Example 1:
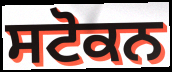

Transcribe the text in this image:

ਸਟੋਕਨ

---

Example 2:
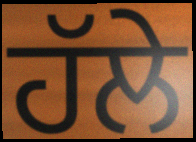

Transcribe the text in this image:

ਹੱਲੇ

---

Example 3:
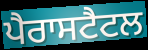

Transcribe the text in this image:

ਪੈਰਾਸਟੈਟਲ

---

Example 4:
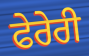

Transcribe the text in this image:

ਫੇਰੇਰੀ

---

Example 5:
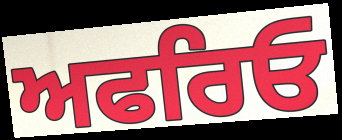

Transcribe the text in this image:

ਅਫਰਿਓ